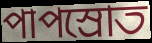
পাপস্রোত